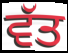
ਵੱਤ